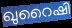
ഖുറൈഷി